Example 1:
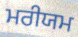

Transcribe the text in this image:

ਮਰੀਯਮ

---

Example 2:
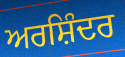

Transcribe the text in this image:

ਅਰਸ਼ਿੰਦਰ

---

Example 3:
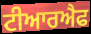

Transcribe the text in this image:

ਟੀਆਰਐਫ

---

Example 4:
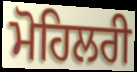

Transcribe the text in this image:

ਮੋਹਿਲਰੀ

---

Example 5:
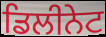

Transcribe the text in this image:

ਡਿਲੀਨੇਟ